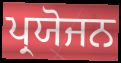
ਪ੍ਰਯੋਜਨ